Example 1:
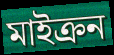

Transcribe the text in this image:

মাইক্রন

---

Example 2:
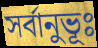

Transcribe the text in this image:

সর্বানুভূঃ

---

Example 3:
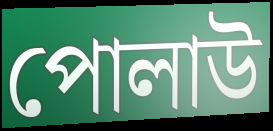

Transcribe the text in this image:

পোলাউ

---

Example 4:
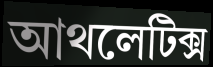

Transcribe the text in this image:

আথলেটিক্স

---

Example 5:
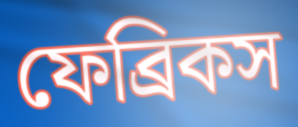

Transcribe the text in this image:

ফেব্রিকস